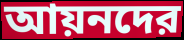
আয়নদের